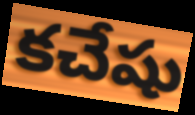
కచేషు